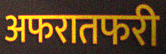
अफरातफरी